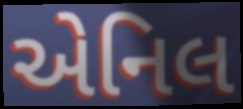
એનિલ